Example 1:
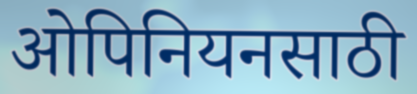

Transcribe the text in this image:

ओपिनियनसाठी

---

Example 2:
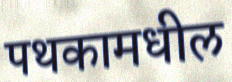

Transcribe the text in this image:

पथकामधील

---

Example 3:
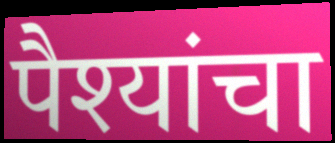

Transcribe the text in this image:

पैश्यांचा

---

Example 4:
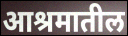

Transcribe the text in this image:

आश्रमातील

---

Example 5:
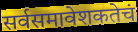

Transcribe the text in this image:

सर्वसमावेशकतेचं